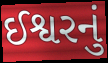
ઈશ્વરનું